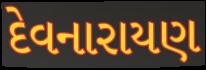
દેવનારાયણ